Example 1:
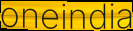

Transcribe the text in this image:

oneindia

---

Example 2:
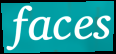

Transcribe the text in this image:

faces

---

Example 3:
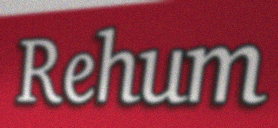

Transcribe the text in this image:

Rehum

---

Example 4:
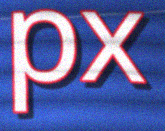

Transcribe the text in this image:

px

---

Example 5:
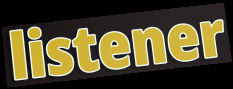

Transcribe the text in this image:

listener